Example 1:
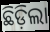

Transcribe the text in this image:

ଛିଡ଼ିଲା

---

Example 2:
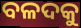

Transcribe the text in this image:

ବଳଦକୁ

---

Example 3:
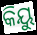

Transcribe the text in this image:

କିୟୁ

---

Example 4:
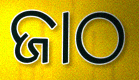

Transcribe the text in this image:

ଜାଠ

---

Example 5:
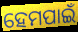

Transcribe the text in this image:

ହେମପାଇଁ